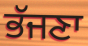
ਭੱਜਣਾ